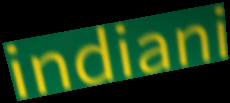
indiani